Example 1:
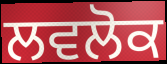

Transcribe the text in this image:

ਲਵਲੋਕ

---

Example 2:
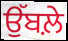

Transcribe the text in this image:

ਉੱਬਲ਼ੇ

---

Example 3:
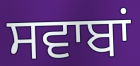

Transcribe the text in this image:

ਸਵਾਬਾਂ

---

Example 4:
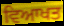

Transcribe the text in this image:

ਵਿਆਖਤ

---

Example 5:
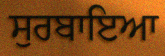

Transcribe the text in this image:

ਸੁਰਬਾਇਆ